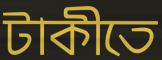
টাকীতে